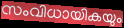
സംവിധായികയും